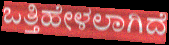
ಒತ್ತಿಹೇಳಲಾಗಿದೆ